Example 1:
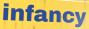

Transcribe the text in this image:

infancy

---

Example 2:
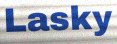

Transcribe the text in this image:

Lasky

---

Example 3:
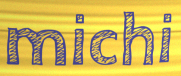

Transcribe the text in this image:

michi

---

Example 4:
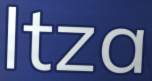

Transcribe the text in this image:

Itza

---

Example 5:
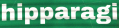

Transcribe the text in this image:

hipparagi